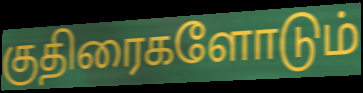
குதிரைகளோடும்